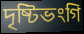
দৃষ্টিভংগি